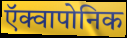
ऍक्वापोनिक